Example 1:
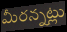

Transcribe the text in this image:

మీరన్నట్లు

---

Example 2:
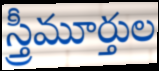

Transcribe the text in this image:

స్త్రీమూర్తుల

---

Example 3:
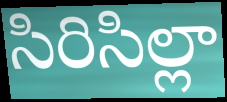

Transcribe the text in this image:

సిరిసిల్లా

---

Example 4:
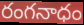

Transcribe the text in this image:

రంగనాధం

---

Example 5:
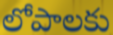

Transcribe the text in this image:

లోపాలకు